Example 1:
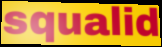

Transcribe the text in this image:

squalid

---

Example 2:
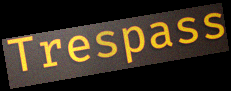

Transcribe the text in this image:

Trespass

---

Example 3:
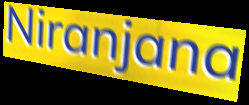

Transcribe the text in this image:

Niranjana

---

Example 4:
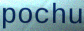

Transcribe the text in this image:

pochu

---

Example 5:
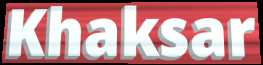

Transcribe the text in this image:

Khaksar